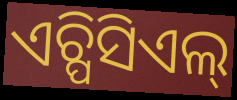
ଏଚ୍ପିସିଏଲ୍